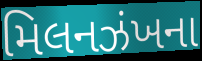
મિલનઝંખના